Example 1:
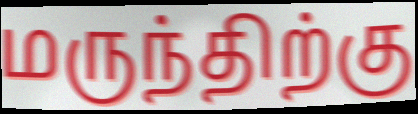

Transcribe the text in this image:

மருந்திற்கு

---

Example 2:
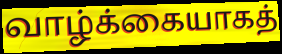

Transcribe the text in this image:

வாழ்க்கையாகத்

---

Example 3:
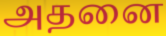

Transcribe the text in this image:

அதனை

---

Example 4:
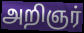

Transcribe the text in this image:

அறிஞர்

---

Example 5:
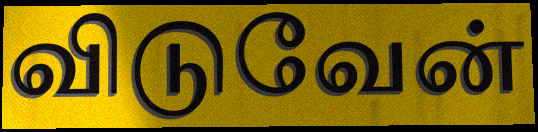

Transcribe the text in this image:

விடுவேன்